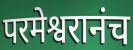
परमेश्वरानंच